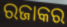
ରଜାକର